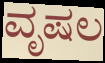
ವೃಷಲ